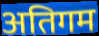
अतिगम